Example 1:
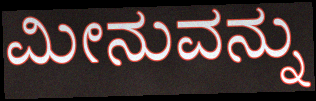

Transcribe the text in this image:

ಮೀನುವನ್ನು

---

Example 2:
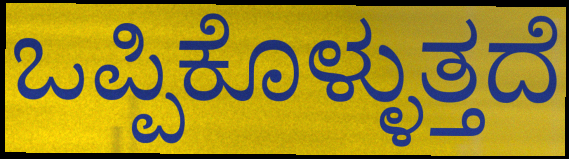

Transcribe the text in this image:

ಒಪ್ಪಿಕೊಳ್ಳುತ್ತದೆ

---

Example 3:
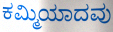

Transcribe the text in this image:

ಕಮ್ಮಿಯಾದವು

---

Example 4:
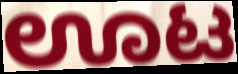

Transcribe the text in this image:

ಊಟ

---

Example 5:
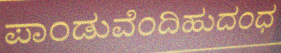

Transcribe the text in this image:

ಪಾಂಡುವೆಂದಿಹುದಂಧ